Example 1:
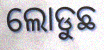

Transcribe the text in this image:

ଲୋଡୁଛ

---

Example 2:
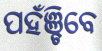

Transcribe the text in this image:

ପହଁଞ୍ଚିବେ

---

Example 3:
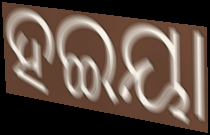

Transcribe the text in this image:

ହଇୟା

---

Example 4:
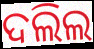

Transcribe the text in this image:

ଦଲିଲ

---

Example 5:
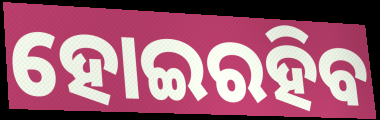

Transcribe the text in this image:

ହୋଇରହିବ